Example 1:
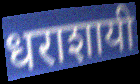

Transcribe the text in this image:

धराशायी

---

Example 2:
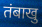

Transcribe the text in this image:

तंबाखु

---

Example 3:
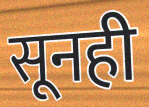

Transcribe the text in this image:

सूनही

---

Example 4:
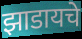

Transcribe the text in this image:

झाडायचे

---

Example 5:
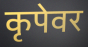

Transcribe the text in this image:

कृपेवर